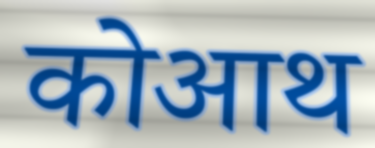
कोआथ